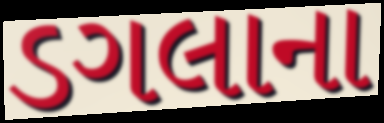
ડગલાના